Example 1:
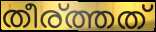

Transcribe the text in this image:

തീര്ത്തത്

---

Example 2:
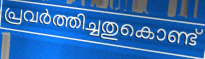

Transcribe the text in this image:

പ്രവർത്തിച്ചതുകൊണ്ട്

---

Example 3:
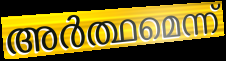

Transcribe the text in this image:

അർത്ഥമെന്ന്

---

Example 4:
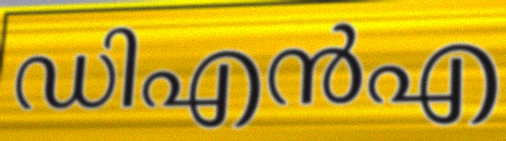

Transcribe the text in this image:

ഡിഎൻഎ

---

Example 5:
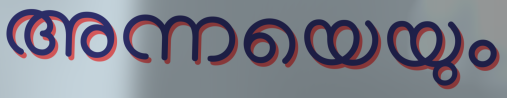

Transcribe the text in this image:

അന്നയെയും